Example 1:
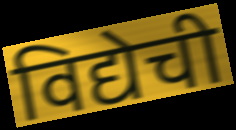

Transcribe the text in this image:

विद्येची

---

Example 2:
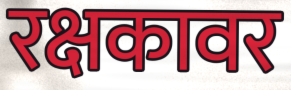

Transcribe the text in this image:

रक्षकावर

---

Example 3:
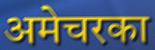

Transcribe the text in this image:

अमेचरका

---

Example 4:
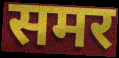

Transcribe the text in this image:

समर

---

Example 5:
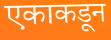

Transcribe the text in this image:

एकाकडून